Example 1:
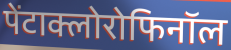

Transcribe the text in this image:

पेंटाक्लोरोफिनॉल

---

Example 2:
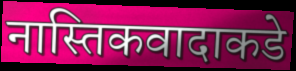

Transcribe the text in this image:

नास्तिकवादाकडे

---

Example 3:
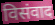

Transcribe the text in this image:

विसंवाद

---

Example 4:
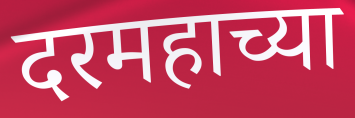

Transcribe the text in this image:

दरमहाच्या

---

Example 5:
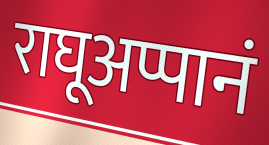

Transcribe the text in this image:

राघूअप्पानं